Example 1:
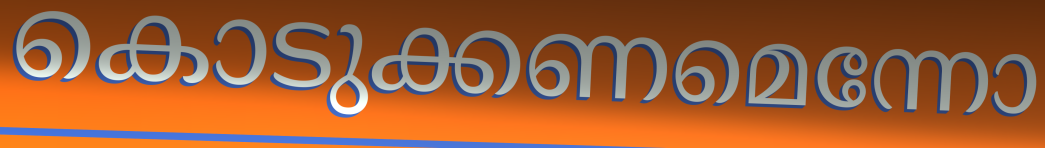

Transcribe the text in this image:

കൊടുക്കണമെന്നോ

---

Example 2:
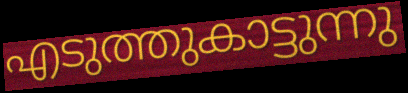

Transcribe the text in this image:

എടുത്തുകാട്ടുന്നു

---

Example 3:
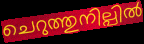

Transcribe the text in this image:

ചെറുത്തുനില്പിൽ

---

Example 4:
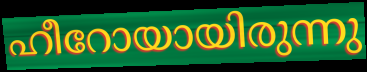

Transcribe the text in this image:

ഹീറോയായിരുന്നു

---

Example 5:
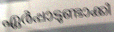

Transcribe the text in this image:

ഏർപ്പാടുണ്ടാക്കി